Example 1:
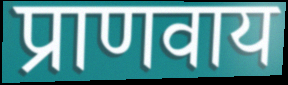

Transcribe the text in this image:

प्राणवाय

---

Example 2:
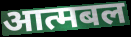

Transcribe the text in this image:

आत्मबल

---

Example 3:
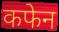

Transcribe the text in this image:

कफेन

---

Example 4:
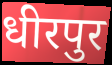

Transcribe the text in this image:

धीरपुर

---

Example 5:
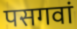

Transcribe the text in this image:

पसगवां